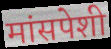
मांसपेशी